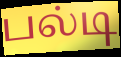
பல்டி